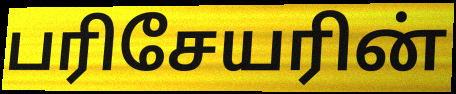
பரிசேயரின்